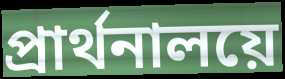
প্রার্থনালয়ে